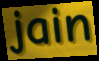
jain